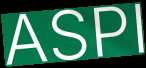
ASPI